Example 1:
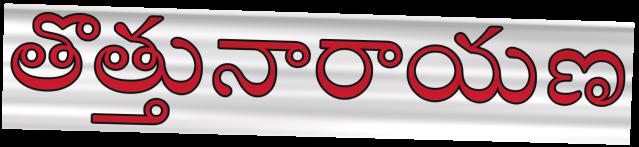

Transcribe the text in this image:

తొత్తునారాయణ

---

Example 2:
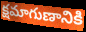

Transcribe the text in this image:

క్షమాగుణానికి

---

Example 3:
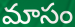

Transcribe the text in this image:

మాసం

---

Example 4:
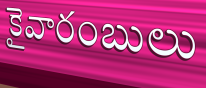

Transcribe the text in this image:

కైవారంబులు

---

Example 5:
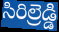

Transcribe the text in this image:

సిరిల్రెడ్డి